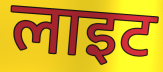
लाइट